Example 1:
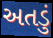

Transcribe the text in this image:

અતડું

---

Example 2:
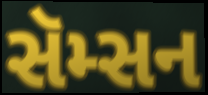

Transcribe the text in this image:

સૅમ્સન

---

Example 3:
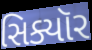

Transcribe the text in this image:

સિક્યૉર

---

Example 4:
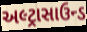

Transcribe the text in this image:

અલ્ટ્રાસાઉન્ડ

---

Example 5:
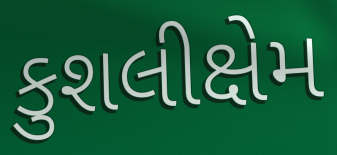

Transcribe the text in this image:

કુશલીક્ષેમ